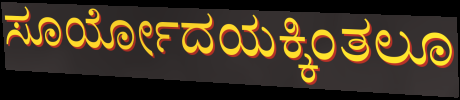
ಸೂರ್ಯೋದಯಕ್ಕಿಂತಲೂ